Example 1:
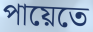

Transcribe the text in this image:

পায়েতে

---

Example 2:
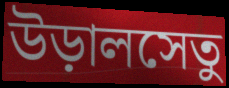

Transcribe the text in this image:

উড়ালসেতু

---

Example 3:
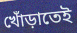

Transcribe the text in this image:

খোঁড়াতেই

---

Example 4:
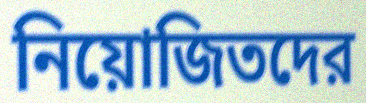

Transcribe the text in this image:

নিয়োজিতদের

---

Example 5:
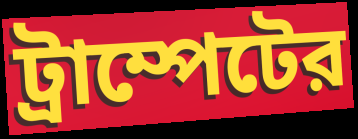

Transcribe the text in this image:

ট্রাম্পেটের